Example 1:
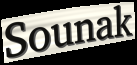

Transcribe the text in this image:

Sounak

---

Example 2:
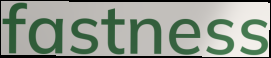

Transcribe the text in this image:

fastness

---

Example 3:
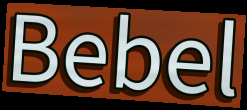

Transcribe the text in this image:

Bebel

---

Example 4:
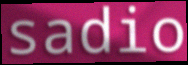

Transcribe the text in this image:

sadio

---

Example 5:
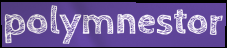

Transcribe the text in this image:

polymnestor